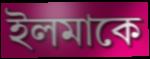
ইলমাকে